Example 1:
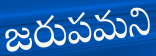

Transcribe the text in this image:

జరుపమని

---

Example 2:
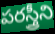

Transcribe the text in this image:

పరస్త్రీని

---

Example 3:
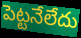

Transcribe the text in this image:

పెట్టనేలేదు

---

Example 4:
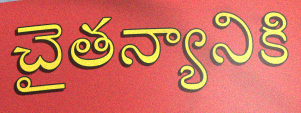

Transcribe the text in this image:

చైతన్యానికి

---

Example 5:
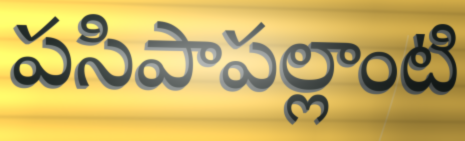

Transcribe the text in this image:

పసిపాపల్లాంటి